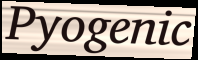
Pyogenic